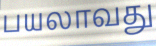
பயலாவது